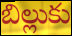
బిల్లుకు